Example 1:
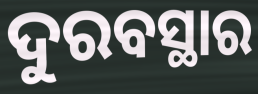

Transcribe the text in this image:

ଦୁରବସ୍ଥାର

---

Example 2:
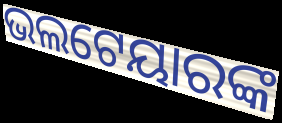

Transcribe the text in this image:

ଭଲଟେୟାରଙ୍କ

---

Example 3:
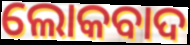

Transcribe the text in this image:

ଲୋକବାଦ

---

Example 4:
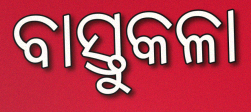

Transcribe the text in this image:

ବାସ୍ତୁକଳା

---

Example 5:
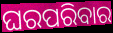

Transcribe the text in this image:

ଘରପରିବାର